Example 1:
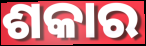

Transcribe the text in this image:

ଶକାର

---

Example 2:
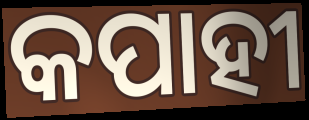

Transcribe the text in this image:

କପାହୀ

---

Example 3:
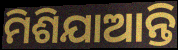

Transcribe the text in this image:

ମିଶିଯାଆନ୍ତି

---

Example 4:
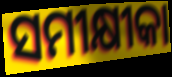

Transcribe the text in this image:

ସମୀକ୍ଷୀକା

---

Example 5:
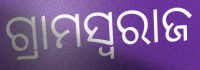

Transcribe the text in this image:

ଗ୍ରାମସ୍ବରାଜ